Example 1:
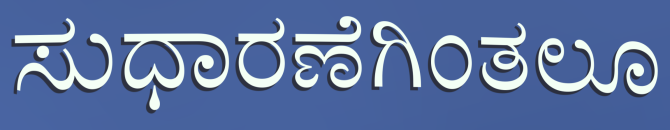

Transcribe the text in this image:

ಸುಧಾರಣೆಗಿಂತಲೂ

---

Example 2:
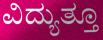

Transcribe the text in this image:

ವಿದ್ಯುತ್ತೂ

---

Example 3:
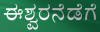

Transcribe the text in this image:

ಈಶ್ವರನೆಡೆಗೆ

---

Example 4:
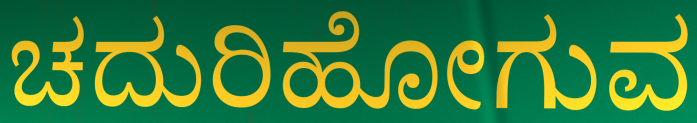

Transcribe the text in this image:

ಚದುರಿಹೋಗುವ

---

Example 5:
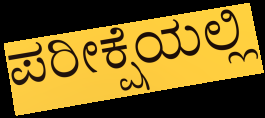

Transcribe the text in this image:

ಪರೀಕ್ಷೆಯಲ್ಲಿ